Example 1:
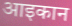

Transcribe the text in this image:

आइकान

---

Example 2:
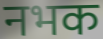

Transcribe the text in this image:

नभक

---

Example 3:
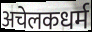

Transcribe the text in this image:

अचेलकधर्म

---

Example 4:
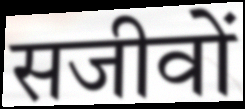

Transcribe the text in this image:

सजीवों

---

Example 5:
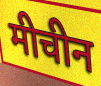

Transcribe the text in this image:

मीचीन